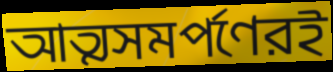
আত্মসমর্পণেরই